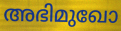
അഭിമുഖോ